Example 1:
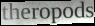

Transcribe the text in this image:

theropods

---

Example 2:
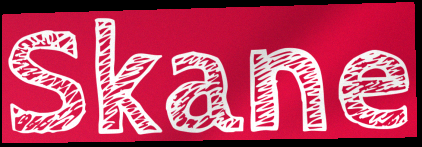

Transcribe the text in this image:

Skane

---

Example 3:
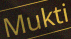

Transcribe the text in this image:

Mukti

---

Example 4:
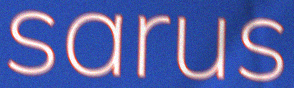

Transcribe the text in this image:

sarus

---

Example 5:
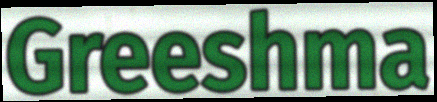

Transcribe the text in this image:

Greeshma